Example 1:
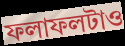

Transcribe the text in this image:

ফলাফলটাও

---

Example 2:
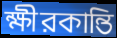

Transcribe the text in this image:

ক্ষীরকান্তি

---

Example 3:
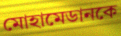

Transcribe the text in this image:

মোহামেডানকে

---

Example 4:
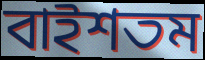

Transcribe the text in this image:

বাইশতম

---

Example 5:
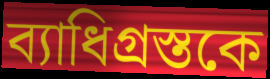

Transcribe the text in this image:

ব্যাধিগ্রস্তকে